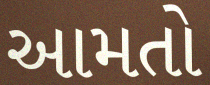
આમતો